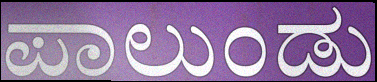
ಪಾಲುಂಡು